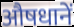
औषधानें